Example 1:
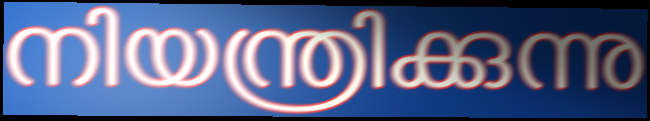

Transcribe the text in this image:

നിയന്ത്രിക്കുന്നു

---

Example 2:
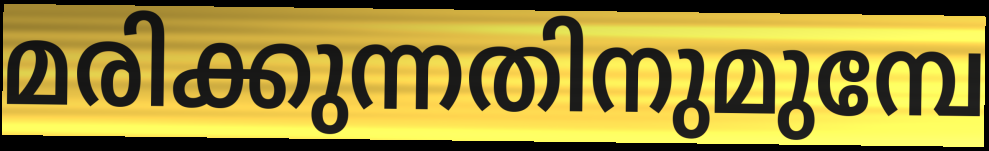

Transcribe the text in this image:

മരിക്കുന്നതിനുമുമ്പേ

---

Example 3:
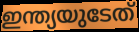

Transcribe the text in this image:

ഇന്ത്യയുടേത്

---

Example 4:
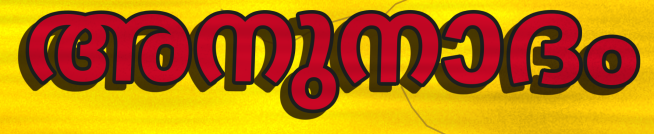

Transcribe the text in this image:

അനുനാദം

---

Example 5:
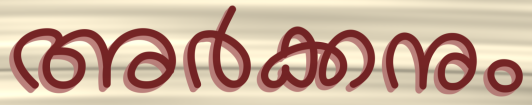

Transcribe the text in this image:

അർക്കനും